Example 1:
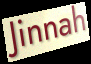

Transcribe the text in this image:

Jinnah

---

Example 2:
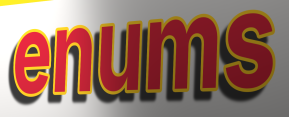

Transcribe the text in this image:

enums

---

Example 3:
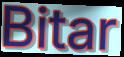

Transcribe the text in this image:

Bitar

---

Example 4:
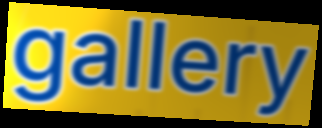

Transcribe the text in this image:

gallery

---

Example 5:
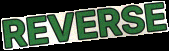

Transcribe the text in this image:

REVERSE